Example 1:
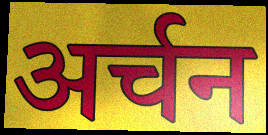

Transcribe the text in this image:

अर्चन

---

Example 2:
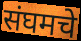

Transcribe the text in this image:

संघमचे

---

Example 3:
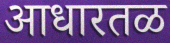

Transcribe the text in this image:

आधारतळ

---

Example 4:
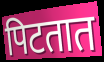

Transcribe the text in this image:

पिटतात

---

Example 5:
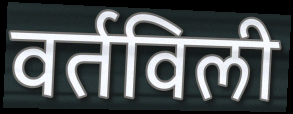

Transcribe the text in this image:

वर्तविली